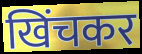
खिंचकर